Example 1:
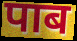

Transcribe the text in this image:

पाब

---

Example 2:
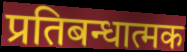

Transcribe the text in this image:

प्रतिबन्धात्मक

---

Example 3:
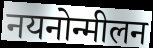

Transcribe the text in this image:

नयनोन्मीलन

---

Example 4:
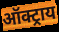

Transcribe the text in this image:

ऑक्ट्राय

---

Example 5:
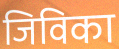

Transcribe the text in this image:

जिविका